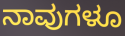
ನಾವುಗಳೂ